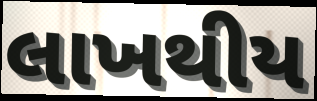
લાખથીય